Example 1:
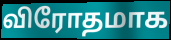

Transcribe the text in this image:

விரோதமாக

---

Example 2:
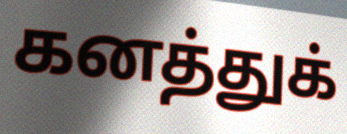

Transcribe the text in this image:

கனத்துக்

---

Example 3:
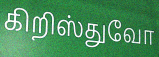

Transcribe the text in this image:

கிறிஸ்துவோ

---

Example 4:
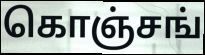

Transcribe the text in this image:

கொஞ்சங்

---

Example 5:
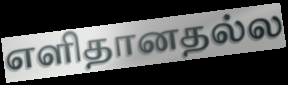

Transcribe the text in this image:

எளிதானதல்ல